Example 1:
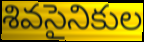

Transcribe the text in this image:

శివసైనికుల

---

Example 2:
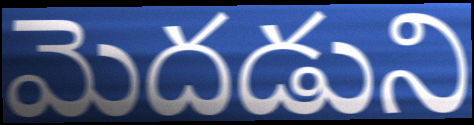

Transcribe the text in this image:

మెదడుని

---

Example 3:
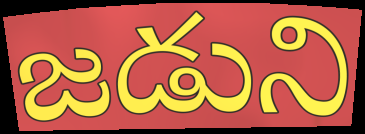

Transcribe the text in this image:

జడుని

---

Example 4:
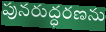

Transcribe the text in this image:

పునరుద్ధరణను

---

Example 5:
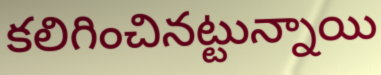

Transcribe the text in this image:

కలిగించినట్టున్నాయి